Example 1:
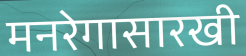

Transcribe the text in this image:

मनरेगासारखी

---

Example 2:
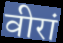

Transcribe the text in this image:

वीरां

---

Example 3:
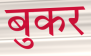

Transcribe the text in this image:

बुकर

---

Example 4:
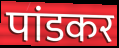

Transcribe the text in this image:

पांडकर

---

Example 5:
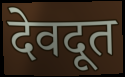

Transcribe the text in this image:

देवदूत